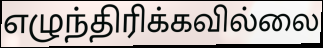
எழுந்திரிக்கவில்லை